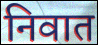
निवात